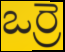
ఒర్రె